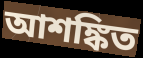
আশঙ্কিত